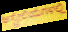
ಆಸ್ಟ್ರೇಲಿಯಗಳಲ್ಲಿ